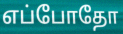
எப்போதோ